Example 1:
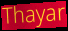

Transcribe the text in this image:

Thayar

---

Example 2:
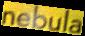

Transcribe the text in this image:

nebula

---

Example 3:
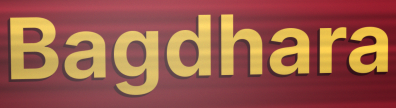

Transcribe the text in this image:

Bagdhara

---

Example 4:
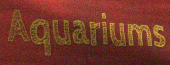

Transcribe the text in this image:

Aquariums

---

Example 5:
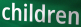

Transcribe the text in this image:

children